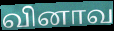
வினாவ